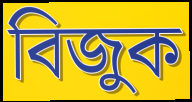
বিজুক